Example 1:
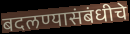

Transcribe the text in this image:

बदलण्यासंबंधीचे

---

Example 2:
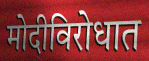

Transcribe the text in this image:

मोदीविरोधात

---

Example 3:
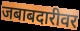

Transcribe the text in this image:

जबाबदारीवर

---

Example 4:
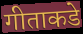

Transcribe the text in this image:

गीताकडे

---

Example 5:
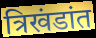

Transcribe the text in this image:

त्रिखंडांत